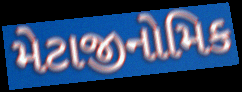
મેટાજીનોમિક